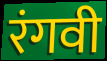
रंगवी